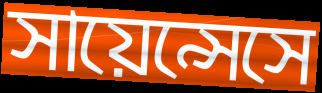
সায়েন্সেসে